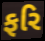
ફરિ